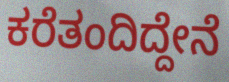
ಕರೆತಂದಿದ್ದೇನೆ